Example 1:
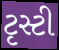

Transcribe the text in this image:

ટૃસ્ટી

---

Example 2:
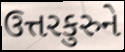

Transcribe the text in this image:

ઉત્તરકુરુને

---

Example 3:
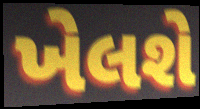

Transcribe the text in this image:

ખેલશે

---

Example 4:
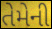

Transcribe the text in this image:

તેમેની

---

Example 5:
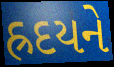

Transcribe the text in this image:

હ્રદયને